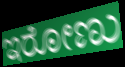
ಇರೋಣು